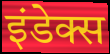
इंडेक्स